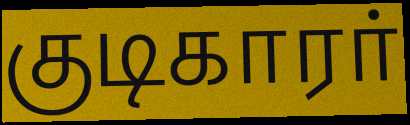
குடிகாரர்